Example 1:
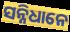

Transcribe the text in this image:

ସନ୍ନିଧାନେ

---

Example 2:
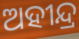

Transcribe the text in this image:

ଅହୀନ୍ଦ୍ର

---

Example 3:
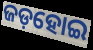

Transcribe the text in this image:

ଜଡ଼ହୋଇ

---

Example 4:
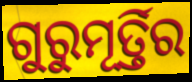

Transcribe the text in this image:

ଗୁରୁମୂର୍ତ୍ତିର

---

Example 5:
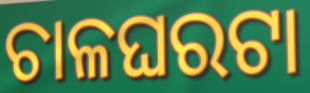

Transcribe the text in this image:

ଚାଳଘରଟା